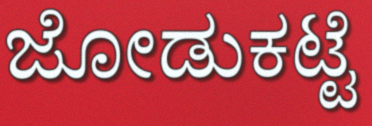
ಜೋಡುಕಟ್ಟೆ